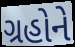
ગ્રહોને